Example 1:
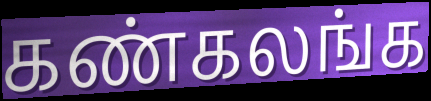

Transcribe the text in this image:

கண்கலங்க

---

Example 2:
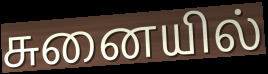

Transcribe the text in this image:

சுனையில்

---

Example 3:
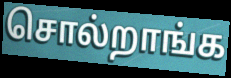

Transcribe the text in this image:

சொல்றாங்க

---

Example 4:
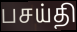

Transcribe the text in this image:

பசய்தி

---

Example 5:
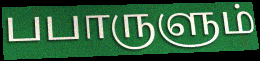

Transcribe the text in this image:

பபாருளும்